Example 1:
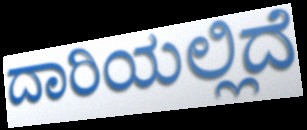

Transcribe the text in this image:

ದಾರಿಯಲ್ಲಿದೆ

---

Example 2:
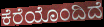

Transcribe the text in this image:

ಕೆರೆಯೊಂದಿದೆ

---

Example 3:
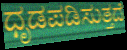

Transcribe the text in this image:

ಧೃಡಪಡಿಸುತ್ತದೆ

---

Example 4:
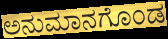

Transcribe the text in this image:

ಅನುಮಾನಗೊಂಡ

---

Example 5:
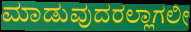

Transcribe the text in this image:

ಮಾಡುವುದರಲ್ಲಾಗಲೀ